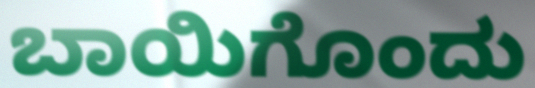
ಬಾಯಿಗೊಂದು